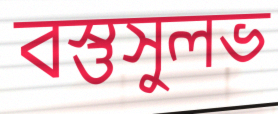
বস্তুসুলভ